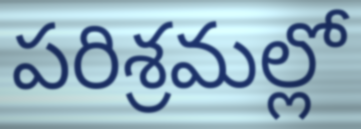
పరిశ్రమల్లో